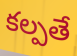
కల్పతే